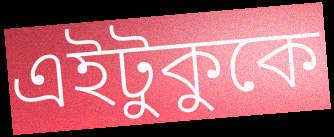
এইটুকুকে